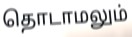
தொடாமலும்